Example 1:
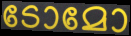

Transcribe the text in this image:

ടോമോ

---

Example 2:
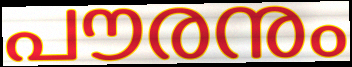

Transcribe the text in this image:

പൗരനും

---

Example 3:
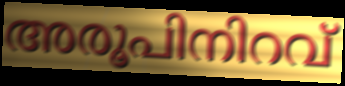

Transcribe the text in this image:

അരൂപിനിറവ്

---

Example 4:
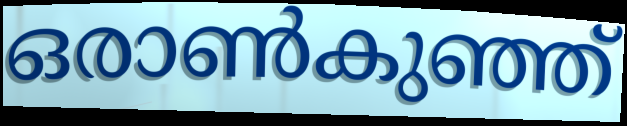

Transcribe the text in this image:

ഒരാൺകുഞ്ഞ്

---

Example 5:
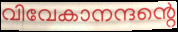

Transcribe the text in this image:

വിവേകാനന്ദന്റെ